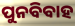
ପୁନବିବାହ